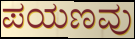
ಪಯಣವು